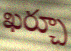
ఖర్చూ